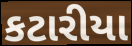
કટારીયા